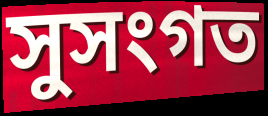
সুসংগত